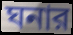
ঘনার